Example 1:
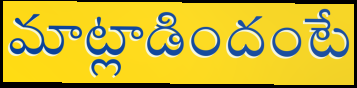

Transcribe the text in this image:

మాట్లాడిందంటే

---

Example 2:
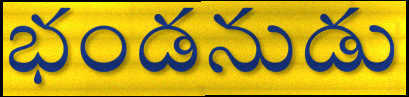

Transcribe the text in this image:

భండనుడు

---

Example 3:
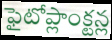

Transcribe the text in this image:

ఫైటోప్లాంక్టన్ల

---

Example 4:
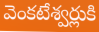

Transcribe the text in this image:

వెంకటేశ్వర్లుకి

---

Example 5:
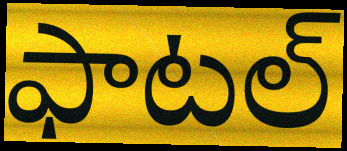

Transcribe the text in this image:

ఫాటల్